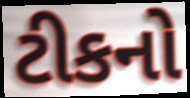
ટીકનો